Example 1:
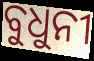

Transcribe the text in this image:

ବୁଧୁନୀ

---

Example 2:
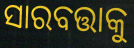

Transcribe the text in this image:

ସାରବତ୍ତାକୁ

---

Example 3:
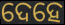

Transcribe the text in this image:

ଦେହେ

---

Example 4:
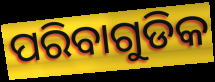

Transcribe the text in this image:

ପରିବାଗୁଡିକ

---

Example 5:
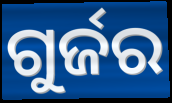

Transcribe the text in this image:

ଗୁର୍ଜର